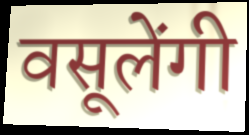
वसूलेंगी